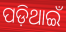
ପଡ଼ିଥାଇଁ